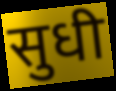
सुधी